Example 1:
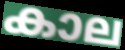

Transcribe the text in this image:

കാല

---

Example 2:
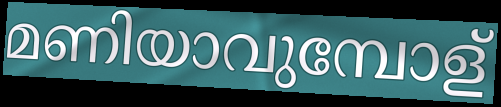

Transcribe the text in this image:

മണിയാവുമ്പോള്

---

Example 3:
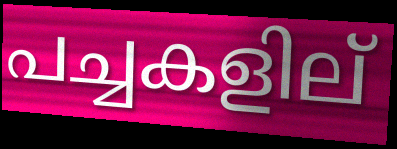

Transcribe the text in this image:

പച്ചകളില്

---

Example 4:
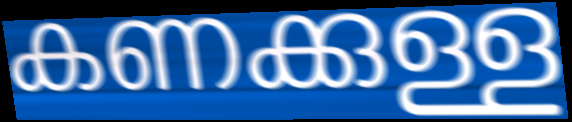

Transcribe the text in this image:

കണക്കുള്ള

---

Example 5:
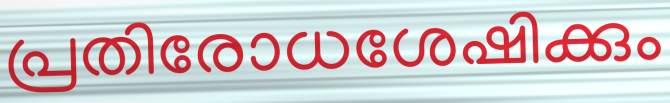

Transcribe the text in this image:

പ്രതിരോധശേഷിക്കും